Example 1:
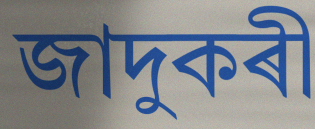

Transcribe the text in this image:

জাদুকৰী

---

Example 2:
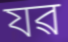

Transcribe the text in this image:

যৱ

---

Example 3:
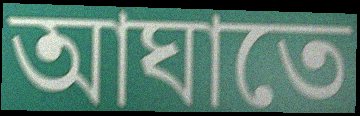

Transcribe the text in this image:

আঘাতে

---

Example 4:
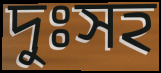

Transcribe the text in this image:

দুঃসহ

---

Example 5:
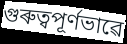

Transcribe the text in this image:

গুৰুত্বপূৰ্ণভাৱে